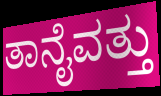
ತಾನೈವತ್ತು